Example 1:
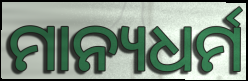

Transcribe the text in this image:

ମାନ୍ୟଧର୍ମ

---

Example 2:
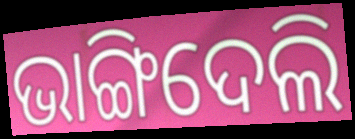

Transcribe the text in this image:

ଭାଙ୍ଗିଦେଲି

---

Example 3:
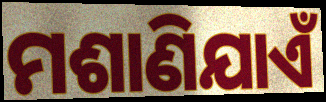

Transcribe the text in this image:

ମଶାଣିଯାଏଁ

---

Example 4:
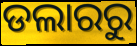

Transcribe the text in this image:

ଡଲାରରୁ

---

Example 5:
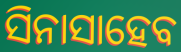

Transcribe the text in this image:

ସିନାସାହେବ